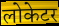
लोकेटर